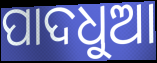
ପାଦଧୁଆ